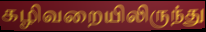
கழிவறையிலிருந்து